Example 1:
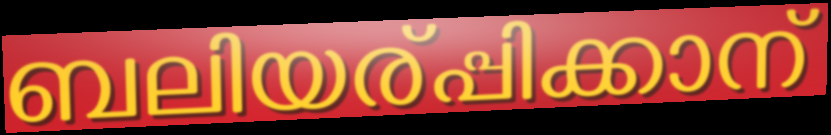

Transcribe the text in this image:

ബലിയര്പ്പിക്കാന്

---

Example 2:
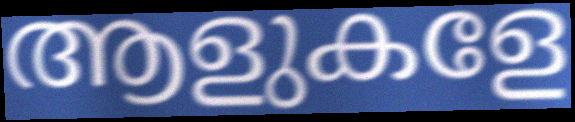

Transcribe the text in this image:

ആളുകളേ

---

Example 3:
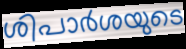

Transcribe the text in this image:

ശിപാർശയുടെ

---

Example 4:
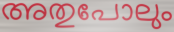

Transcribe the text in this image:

അതുപോലും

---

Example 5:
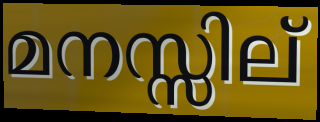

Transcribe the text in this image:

മനസ്സില്